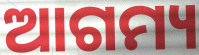
ଆଗମ୍ୟ